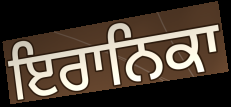
ਇਰਾਨਿਕਾ